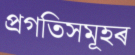
প্ৰগতিসমূহৰ